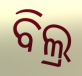
ବିଲ୍ର